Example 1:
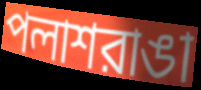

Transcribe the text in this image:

পলাশরাঙা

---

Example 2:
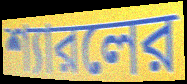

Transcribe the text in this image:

শ্যারলের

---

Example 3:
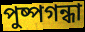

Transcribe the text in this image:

পুষ্পগন্ধা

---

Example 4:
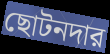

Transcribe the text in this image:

ছোটনদার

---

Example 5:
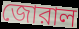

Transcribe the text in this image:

জোরাল